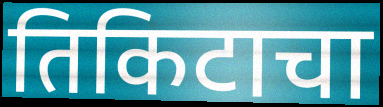
तिकिटाचा